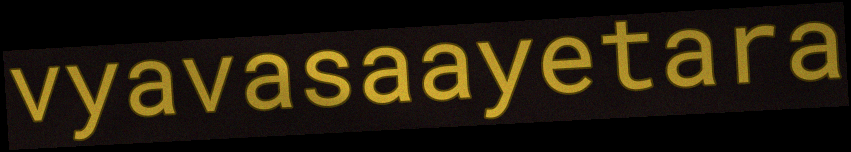
vyavasaayetara